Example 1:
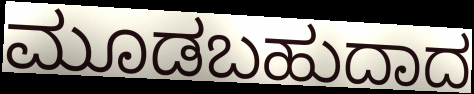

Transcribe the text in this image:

ಮೂಡಬಹುದಾದ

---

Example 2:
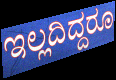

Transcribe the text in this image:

ಇಲ್ಲದಿದ್ದರೂ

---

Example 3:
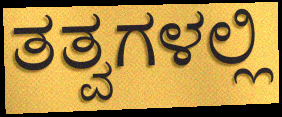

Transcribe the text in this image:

ತತ್ವಗಳಲ್ಲಿ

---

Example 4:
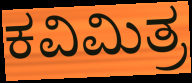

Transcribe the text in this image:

ಕವಿಮಿತ್ರ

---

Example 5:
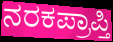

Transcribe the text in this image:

ನರಕಪ್ರಾಪ್ತಿ